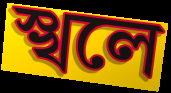
স্খলে